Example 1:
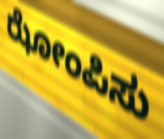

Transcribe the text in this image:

ಝೋಂಪಿಸು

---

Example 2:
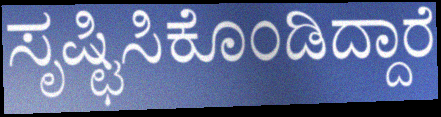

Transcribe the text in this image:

ಸೃಷ್ಟಿಸಿಕೊಂಡಿದ್ದಾರೆ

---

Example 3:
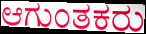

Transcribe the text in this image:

ಆಗುಂತಕರು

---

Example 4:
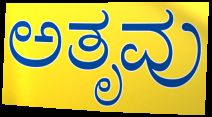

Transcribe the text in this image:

ಅತೃವು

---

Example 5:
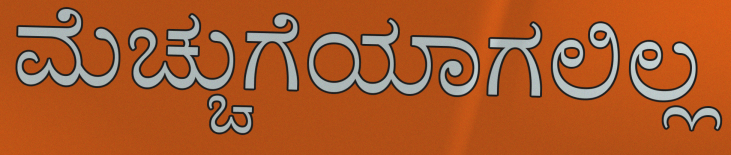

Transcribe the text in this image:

ಮೆಚ್ಚುಗೆಯಾಗಲಿಲ್ಲ